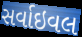
સર્વાઇવલ